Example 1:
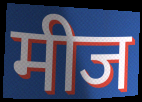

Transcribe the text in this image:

मीज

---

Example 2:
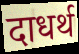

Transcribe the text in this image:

दाधर्थ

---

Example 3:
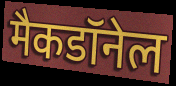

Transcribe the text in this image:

मैकडॉनेल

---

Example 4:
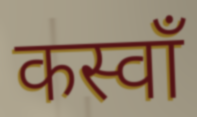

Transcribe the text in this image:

कस्वाँ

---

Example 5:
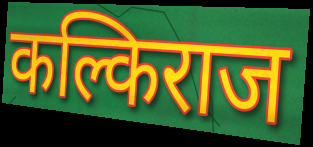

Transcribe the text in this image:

कल्किराज